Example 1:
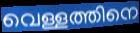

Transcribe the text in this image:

വെള്ളത്തിനെ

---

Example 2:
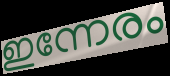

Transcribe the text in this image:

ഇന്നേരം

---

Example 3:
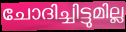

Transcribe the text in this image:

ചോദിച്ചിട്ടുമില്ല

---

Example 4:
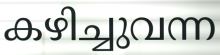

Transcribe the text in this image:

കഴിച്ചുവന്ന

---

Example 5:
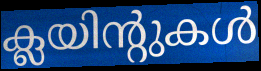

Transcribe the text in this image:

ക്ലയിന്റുകൾ